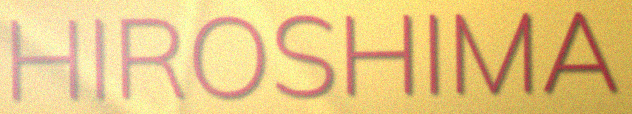
HIROSHIMA